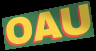
OAU